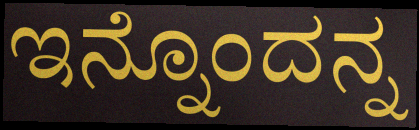
ಇನ್ನೊಂದನ್ನ